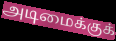
அடிமைக்குக்